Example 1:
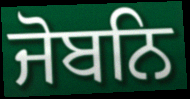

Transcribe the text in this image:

ਜੋਬਨਿ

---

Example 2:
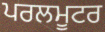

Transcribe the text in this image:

ਪਰਲਮੂਟਰ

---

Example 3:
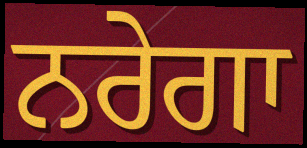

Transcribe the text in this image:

ਨਰੇਗਾ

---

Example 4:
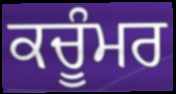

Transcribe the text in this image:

ਕਚੂੰਮਰ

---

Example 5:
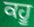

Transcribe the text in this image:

ਕਹੂ